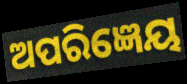
ଅପରିଜ୍ଞେୟ